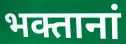
भक्तानां